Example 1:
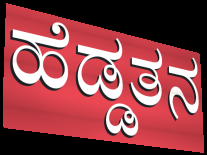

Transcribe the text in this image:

ಹೆಡ್ಡತನ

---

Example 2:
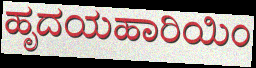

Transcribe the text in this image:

ಹೃದಯಹಾರಿಯಿಂ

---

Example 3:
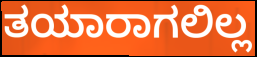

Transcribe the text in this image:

ತಯಾರಾಗಲಿಲ್ಲ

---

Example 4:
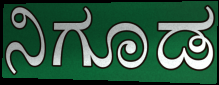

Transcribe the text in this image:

ನಿಗೂಡ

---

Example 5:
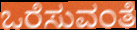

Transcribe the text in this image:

ಒರೆಸುವಂತೆ